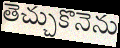
తెచ్చుకొనెను